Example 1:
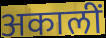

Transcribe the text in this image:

अकालीं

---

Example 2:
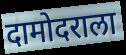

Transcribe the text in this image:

दामोदराला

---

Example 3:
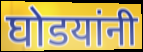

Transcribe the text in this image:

घोडयांनी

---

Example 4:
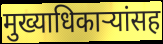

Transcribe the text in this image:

मुख्याधिकाऱ्यांसह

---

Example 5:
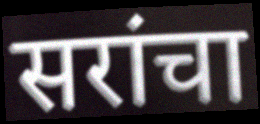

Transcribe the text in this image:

सरांचा